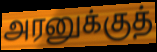
அரனுக்குத்